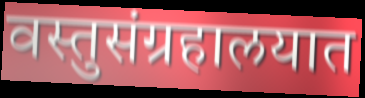
वस्तुसंग्रहालयात